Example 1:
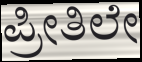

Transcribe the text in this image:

ಪ್ರೀತಿಲೇ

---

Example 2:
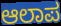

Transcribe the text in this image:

ಆಲಾಪ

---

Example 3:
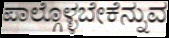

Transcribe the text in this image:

ಪಾಲ್ಗೊಳ್ಳಬೇಕೆನ್ನುವ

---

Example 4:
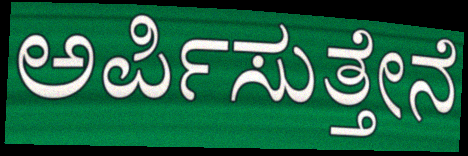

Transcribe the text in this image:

ಅರ್ಪಿಸುತ್ತೇನೆ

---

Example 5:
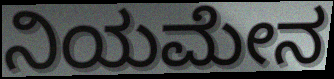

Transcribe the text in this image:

ನಿಯಮೇನ